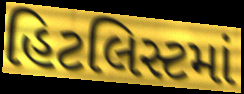
હિટલિસ્ટમાં